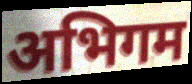
अभिगम